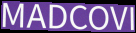
MADCOVI